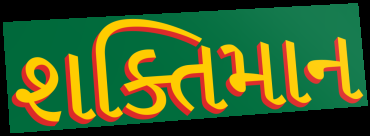
શક્તિમાન